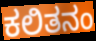
ಕಲಿತನಂ